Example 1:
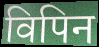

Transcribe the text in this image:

विपिन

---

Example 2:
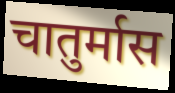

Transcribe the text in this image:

चातुर्मास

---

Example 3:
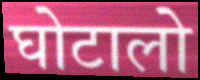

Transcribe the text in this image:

घोटालो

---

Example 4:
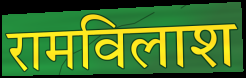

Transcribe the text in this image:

रामविलाश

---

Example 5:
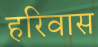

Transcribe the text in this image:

हरिवास